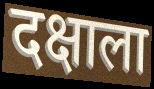
दक्षाला